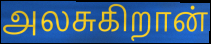
அலசுகிறான்